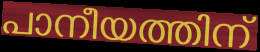
പാനീയത്തിന്